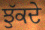
ਝੁੱਕਦੇ